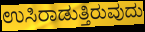
ಉಸಿರಾಡುತ್ತಿರುವುದು